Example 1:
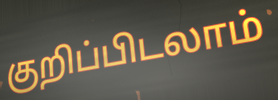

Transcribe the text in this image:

குறிப்பிடலாம்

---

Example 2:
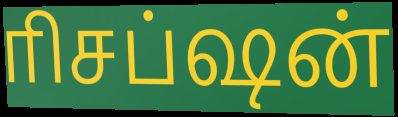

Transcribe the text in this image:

ரிசப்ஷன்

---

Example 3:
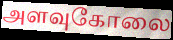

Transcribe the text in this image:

அளவுகோலை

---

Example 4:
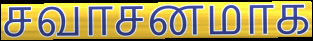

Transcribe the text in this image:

சவாசனமாக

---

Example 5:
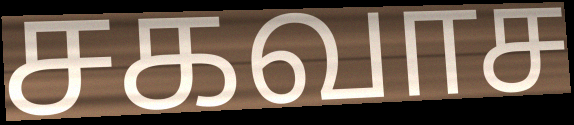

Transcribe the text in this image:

சகவாச